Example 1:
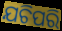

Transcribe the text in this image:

ଯଚିପରି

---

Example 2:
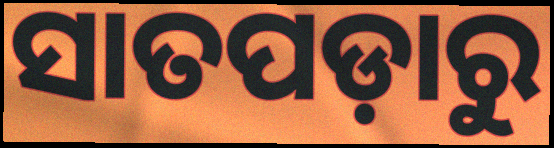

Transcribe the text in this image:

ସାତପଡ଼ାରୁ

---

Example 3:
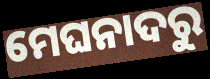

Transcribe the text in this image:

ମେଘନାଦରୁ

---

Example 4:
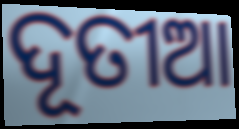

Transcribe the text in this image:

ଦୂତୀଆ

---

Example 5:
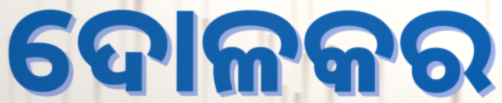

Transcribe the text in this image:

ଦୋଳକର